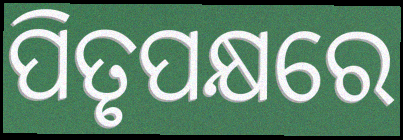
ପିତୃପକ୍ଷରେ